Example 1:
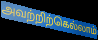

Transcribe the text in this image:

அவற்றிற்கெல்லாம்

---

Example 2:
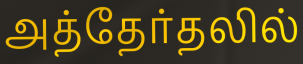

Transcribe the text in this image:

அத்தேர்தலில்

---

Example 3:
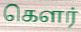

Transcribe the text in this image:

கௌர்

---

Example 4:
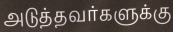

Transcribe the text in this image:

அடுத்தவர்களுக்கு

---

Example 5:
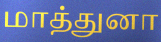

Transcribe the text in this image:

மாத்துனா